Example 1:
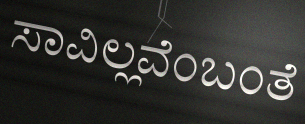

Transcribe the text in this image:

ಸಾವಿಲ್ಲವೆಂಬಂತೆ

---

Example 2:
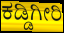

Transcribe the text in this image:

ಕಡ್ಡಿಗೀರಿ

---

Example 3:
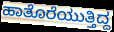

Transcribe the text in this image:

ಹಾತೊರೆಯುತ್ತಿದ್ದ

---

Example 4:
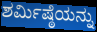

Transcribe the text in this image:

ಶರ್ಮಿಷ್ಠೆಯನ್ನು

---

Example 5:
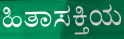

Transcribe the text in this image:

ಹಿತಾಸಕ್ತಿಯ